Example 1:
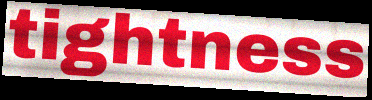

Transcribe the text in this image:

tightness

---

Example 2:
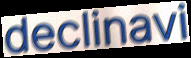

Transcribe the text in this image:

declinavi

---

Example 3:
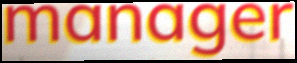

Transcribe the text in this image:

manager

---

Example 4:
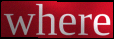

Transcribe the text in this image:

where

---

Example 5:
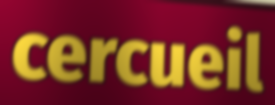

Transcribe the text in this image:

cercueil